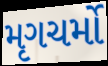
મૃગચર્મો